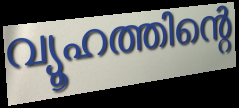
വ്യൂഹത്തിന്റെ